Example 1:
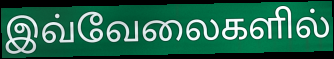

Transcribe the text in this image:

இவ்வேலைகளில்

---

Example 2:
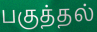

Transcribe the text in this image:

பகுத்தல்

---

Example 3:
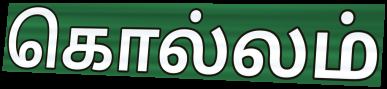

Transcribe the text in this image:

கொல்லம்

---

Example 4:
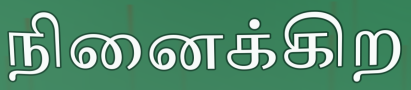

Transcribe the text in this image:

நினைக்கிற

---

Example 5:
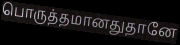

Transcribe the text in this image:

பொருத்தமானதுதானே